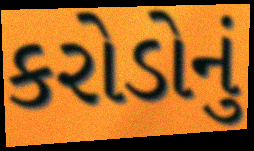
કરોડોનું